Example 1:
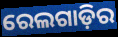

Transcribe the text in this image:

ରେଲଗାଡ଼ିର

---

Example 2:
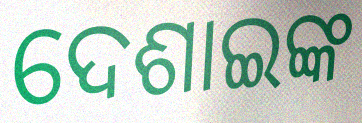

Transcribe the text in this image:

ଦେଶାଇଙ୍କ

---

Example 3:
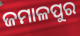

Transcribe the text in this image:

ଜମାଳପୁର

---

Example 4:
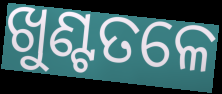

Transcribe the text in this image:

ଖୁଣ୍ଟତଳେ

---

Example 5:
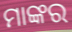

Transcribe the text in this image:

ମାଙ୍କର